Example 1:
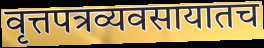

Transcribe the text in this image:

वृत्तपत्रव्यवसायातच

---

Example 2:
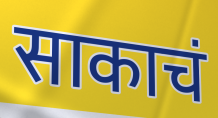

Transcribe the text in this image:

साकाचं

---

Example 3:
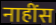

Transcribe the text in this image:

नाहींस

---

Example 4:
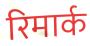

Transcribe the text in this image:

रिमार्क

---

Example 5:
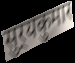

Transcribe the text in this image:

सुर्यकुमार